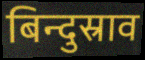
बिन्दुस्राव